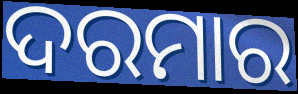
ଦରମାର